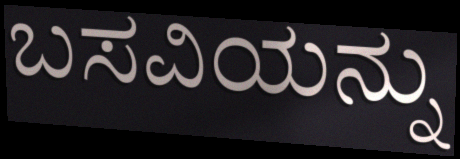
ಬಸವಿಯನ್ನು